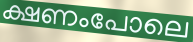
ക്ഷണംപോലെ